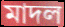
মাদল